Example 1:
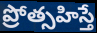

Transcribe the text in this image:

ప్రోత్సహిస్తే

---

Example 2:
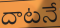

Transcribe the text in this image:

దాటనే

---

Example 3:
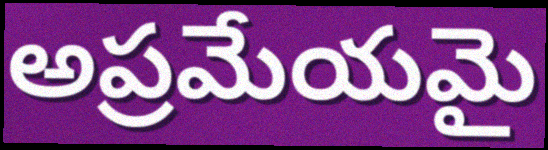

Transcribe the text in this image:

అప్రమేయమై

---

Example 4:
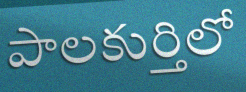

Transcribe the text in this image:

పాలకుర్తిలో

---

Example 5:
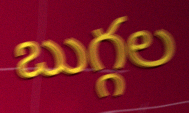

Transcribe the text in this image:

బుగ్గల